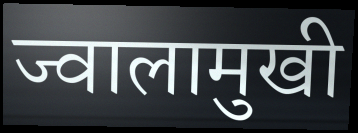
ज्वालामुखी